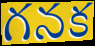
గనక